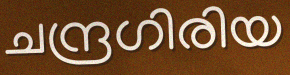
ചന്ദ്രഗിരിയ